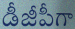
డీజీపీగా